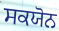
ਸਕਯੋਨ